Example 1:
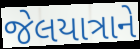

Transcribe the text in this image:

જેલયાત્રાને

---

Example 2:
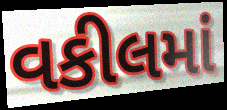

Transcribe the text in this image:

વકીલમાં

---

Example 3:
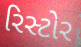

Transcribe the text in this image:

રિસ્ટોર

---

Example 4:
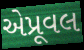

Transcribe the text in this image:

એપ્રૂવલ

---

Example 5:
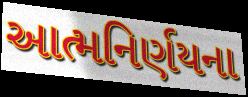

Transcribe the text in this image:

આત્મનિર્ણયના